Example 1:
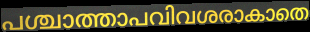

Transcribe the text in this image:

പശ്ചാത്താപവിവശരാകാതെ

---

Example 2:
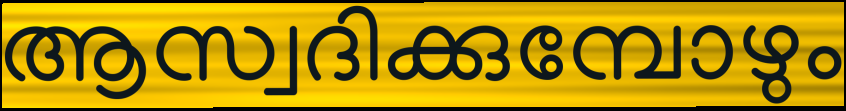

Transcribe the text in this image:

ആസ്വദിക്കുമ്പോഴും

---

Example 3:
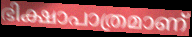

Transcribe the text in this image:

ഭിക്ഷാപാത്രമാണ്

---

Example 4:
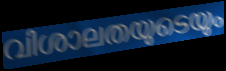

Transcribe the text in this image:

വിശാലതയുടെയും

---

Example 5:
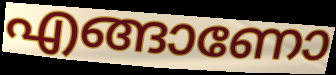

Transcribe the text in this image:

എങ്ങാണോ